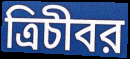
ত্রিচীবর